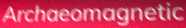
Archaeomagnetic